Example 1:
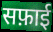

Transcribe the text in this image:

सफ़ाई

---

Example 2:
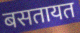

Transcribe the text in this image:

बसतायत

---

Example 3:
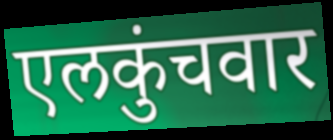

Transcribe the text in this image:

एलकुंचवार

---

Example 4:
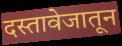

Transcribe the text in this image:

दस्तावेजातून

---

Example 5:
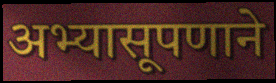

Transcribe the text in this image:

अभ्यासूपणाने